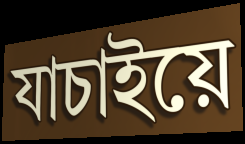
যাচাইয়ে